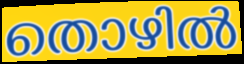
തൊഴിൽ